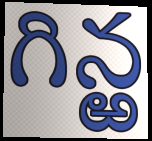
గిన్ఱ